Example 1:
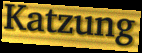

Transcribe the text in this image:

Katzung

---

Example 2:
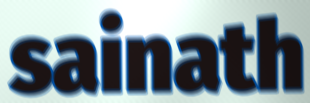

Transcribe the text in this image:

sainath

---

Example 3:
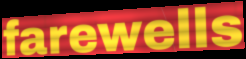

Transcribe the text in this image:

farewells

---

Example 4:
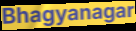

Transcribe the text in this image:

Bhagyanagar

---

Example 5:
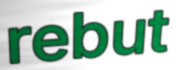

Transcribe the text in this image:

rebut